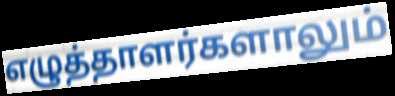
எழுத்தாளர்களாலும்